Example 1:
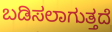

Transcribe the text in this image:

ಬಡಿಸಲಾಗುತ್ತದೆ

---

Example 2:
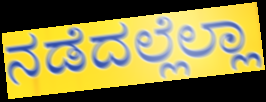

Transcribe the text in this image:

ನಡೆದಲ್ಲೆಲ್ಲಾ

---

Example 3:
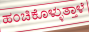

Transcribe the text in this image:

ಹಂಚಿಕೊಳ್ಳುತ್ತಾಳೆ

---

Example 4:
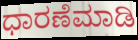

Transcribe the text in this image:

ಧಾರಣೆಮಾಡಿ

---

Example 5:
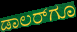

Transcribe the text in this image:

ಡಾಲರ್‌ಗೂ